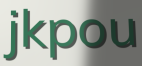
jkpou